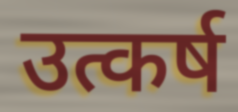
उत्कर्ष